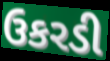
ઉકરડી